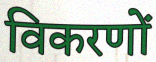
विकरणों